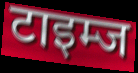
टाइम्ज